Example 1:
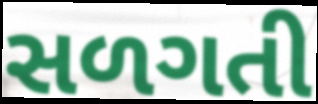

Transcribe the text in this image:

સળગતી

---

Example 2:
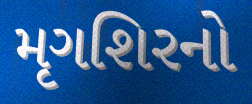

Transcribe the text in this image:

મૃગશિરનો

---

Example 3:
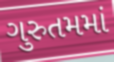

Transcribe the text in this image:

ગુરુતમમાં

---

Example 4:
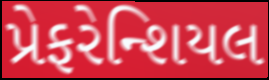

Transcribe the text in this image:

પ્રેફરેન્શિયલ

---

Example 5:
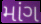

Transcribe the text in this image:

માંગ